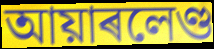
আয়াৰলেণ্ড